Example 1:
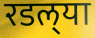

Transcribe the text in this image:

रडल्या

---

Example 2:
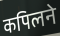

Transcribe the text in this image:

कपिलने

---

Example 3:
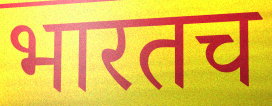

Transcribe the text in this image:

भारतच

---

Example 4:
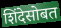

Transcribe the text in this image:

शिंदेसोबत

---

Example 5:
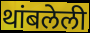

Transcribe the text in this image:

थांबलेली